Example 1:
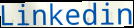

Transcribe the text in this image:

Linkedin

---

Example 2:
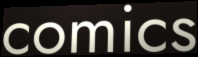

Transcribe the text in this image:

comics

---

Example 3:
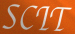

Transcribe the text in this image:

SCIT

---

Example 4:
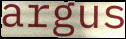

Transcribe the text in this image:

argus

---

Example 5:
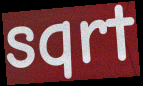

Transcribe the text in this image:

sqrt